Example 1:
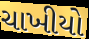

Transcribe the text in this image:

ચાખીયો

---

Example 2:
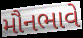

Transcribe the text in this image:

મૌનભાવે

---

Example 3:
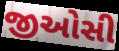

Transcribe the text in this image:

જીઓસી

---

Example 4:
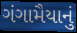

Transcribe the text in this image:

ગંગામૈયાનું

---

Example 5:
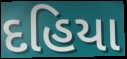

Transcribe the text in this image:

દહિયા